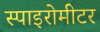
स्पाइरोमीटर